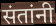
संतांनी